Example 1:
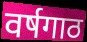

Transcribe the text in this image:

वर्षगाठ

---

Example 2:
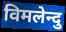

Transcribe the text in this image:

विमलेन्दु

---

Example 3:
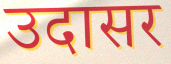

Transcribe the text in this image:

उदासर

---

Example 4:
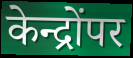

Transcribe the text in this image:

केन्द्रोंपर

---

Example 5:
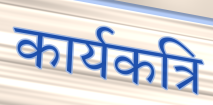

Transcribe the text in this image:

कार्यकत्रि